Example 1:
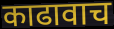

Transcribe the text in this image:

काढावाच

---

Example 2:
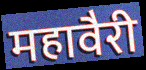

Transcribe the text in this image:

महावैरी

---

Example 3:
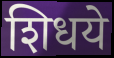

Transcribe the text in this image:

शिधये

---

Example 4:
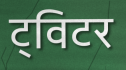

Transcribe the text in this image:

ट्‌विटर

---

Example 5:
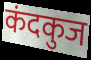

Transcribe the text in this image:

कंदकुज